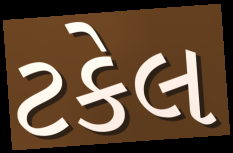
ટકેલ